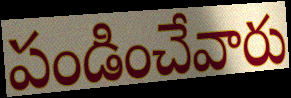
పండించేవారు